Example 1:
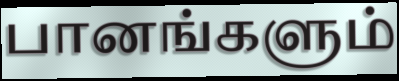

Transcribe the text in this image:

பானங்களும்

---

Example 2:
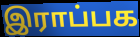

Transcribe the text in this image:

இராப்பக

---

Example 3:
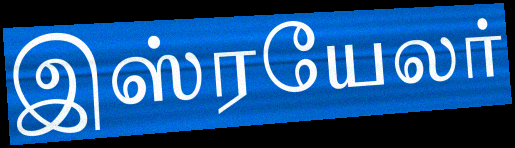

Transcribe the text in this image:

இஸ்ரயேலர்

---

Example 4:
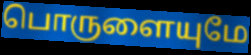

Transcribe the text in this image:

பொருளையுமே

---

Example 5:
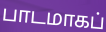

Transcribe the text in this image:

பாடமாகப்